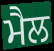
ਮੈਲ